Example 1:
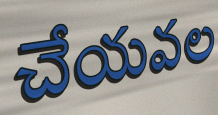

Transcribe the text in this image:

చేయవల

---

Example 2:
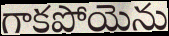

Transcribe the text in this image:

గాకపోయెను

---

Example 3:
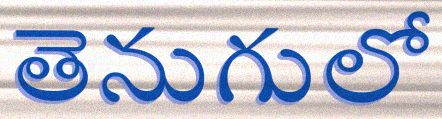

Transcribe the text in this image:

తెనుగులో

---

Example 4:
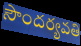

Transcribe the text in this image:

సౌందర్యవతి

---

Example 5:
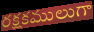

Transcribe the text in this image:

రక్షకములుగా